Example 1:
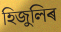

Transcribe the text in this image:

হিজুলিৰ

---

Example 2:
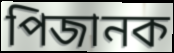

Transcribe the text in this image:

পিজানক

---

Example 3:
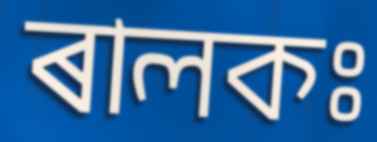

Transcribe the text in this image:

ৰালকঃ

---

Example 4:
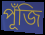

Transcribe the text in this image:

পূঁজি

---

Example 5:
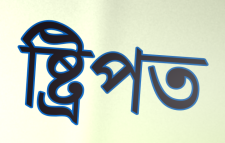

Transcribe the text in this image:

ষ্ট্ৰিপত